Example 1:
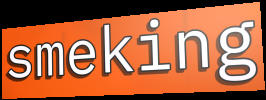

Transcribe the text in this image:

smeking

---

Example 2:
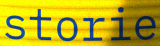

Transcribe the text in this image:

storie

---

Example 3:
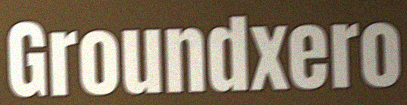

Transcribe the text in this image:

Groundxero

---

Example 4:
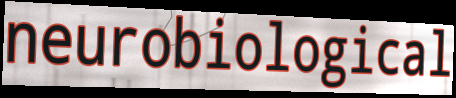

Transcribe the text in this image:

neurobiological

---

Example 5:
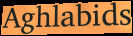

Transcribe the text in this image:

Aghlabids